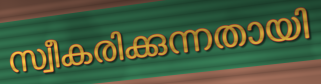
സ്വീകരിക്കുന്നതായി